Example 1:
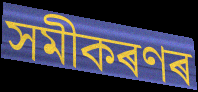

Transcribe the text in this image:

সমীকৰণৰ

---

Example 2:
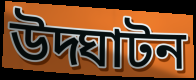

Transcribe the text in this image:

উদ্ঘাটন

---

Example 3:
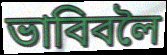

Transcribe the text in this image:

ভাবিবলৈ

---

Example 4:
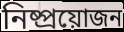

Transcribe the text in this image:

নিষ্প্ৰয়োজন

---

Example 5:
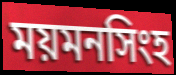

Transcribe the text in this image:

ময়মনসিংহ